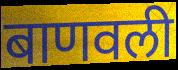
बाणवली